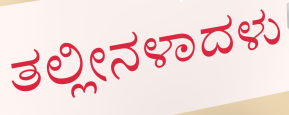
ತಲ್ಲೀನಳಾದಳು